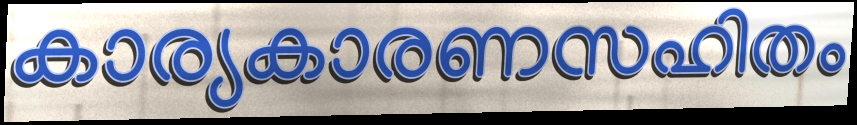
കാര്യകാരണസഹിതം